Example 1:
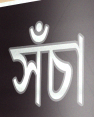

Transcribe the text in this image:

সঁচা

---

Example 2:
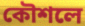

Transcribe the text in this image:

কৌশলে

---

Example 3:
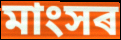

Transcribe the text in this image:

মাংসৰ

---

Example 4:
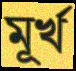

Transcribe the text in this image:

মূৰ্খ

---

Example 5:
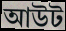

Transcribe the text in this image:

আউট